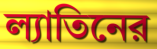
ল্যাতিনের